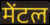
मेंटल